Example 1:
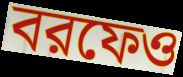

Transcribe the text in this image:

বরফেও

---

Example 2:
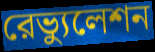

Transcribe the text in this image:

রেভ্যুলেশন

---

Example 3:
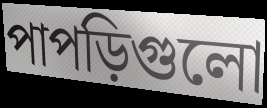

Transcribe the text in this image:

পাপড়িগুলো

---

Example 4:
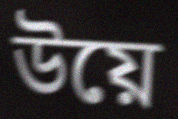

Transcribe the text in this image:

উয়ে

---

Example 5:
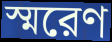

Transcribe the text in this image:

স্মরেণ